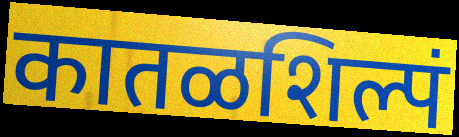
कातळशिल्पं